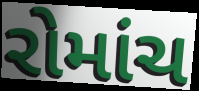
રોમાંચ